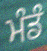
ਮੰਡੰ